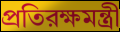
প্রতিরক্ষমন্ত্রী